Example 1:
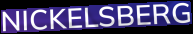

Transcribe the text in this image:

NICKELSBERG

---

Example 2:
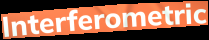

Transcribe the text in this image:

Interferometric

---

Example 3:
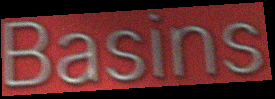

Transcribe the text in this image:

Basins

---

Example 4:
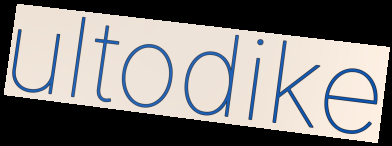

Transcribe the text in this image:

ultodike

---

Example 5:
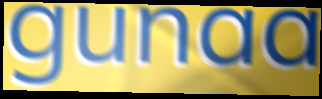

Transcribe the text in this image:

gunaa